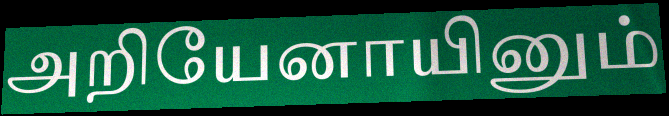
அறியேனாயினும்